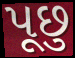
પૂછુ